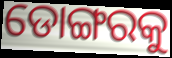
ଡୋଙ୍ଗରକୁ